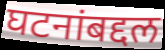
घटनांबद्दल